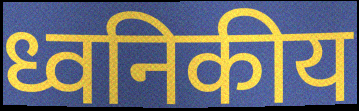
ध्वनिकीय